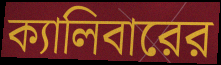
ক্যালিবারের